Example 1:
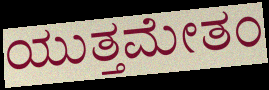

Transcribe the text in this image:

ಯುತ್ತಮೇತಂ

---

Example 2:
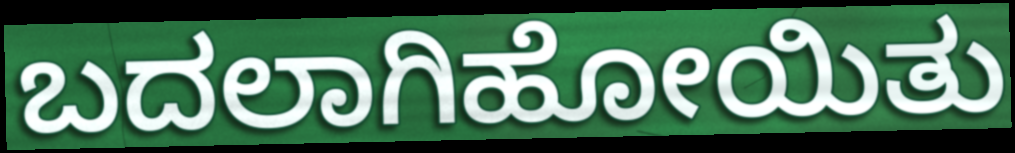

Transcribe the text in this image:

ಬದಲಾಗಿಹೋಯಿತು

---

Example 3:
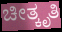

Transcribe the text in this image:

ಚೀತ್ಕೃತಿ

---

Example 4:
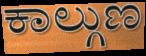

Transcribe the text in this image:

ಕಾಲ್ಗುಣ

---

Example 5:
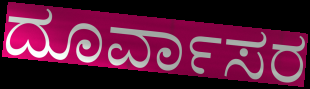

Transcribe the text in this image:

ದೂರ್ವಾಸರ